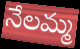
నేలమ్మ